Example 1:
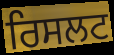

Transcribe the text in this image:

ਰਿਸਲਟ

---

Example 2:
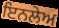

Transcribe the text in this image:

ਇਨਲੇਅ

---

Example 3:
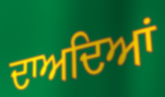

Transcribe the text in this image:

ਦਾਅਦਿਆਂ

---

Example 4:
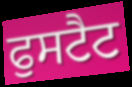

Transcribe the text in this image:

ਫੁਸਟੈਟ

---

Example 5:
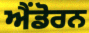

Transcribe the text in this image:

ਐਂਡੋਰਨ